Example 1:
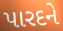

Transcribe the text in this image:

પારદને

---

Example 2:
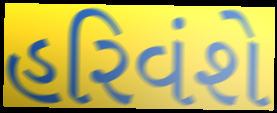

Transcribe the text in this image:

હરિવંશે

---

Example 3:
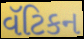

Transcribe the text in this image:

વૅટિકન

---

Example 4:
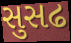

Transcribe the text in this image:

સુસઢ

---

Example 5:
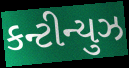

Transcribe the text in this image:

કન્ટીન્યુઝ